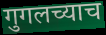
गुगलच्याच